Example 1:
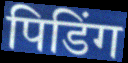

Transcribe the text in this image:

पिडिंग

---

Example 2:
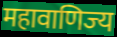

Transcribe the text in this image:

महावाणिज्‍य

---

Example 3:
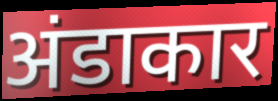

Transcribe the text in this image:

अंडाकार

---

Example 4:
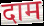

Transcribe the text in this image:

दाम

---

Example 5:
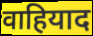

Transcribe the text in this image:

वाहियाद